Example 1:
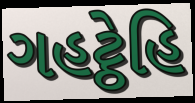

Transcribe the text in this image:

ગહટ્ઠેહિ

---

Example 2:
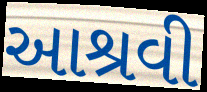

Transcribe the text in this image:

આશ્રવી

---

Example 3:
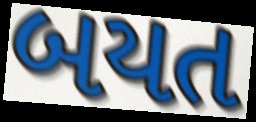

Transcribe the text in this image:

બયત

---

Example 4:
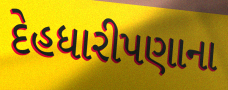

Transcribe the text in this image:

દેહધારીપણાના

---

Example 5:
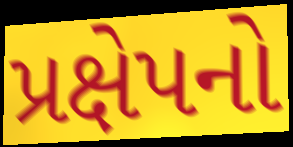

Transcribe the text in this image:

પ્રક્ષેપનો